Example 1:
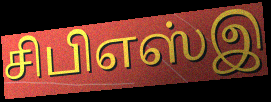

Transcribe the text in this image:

சிபிஎஸ்இ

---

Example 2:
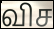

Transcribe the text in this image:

விச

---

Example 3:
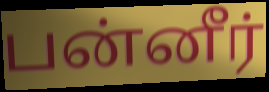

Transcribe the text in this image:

பன்னீர்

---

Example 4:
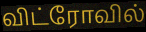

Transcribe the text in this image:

விட்ரோவில்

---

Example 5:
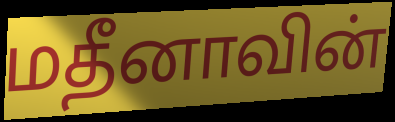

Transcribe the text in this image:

மதீனாவின்